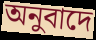
অনুবাদে